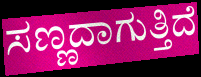
ಸಣ್ಣದಾಗುತ್ತಿದೆ